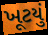
ખૂટયું